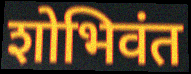
शोभिवंत